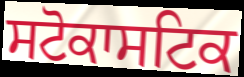
ਸਟੋਕਾਸਟਿਕ